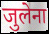
जुलेना